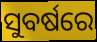
ସୁବର୍ଷରେ